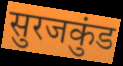
सुरजकुंड